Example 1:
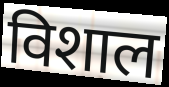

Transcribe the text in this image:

विशाल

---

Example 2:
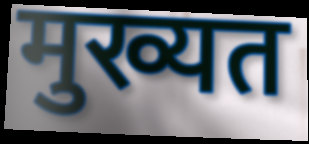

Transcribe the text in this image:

मुख्यत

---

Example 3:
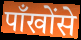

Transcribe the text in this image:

पाँखोंसे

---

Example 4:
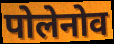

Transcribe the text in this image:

पोलेनोव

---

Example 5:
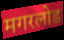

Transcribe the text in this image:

मगरलोड